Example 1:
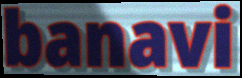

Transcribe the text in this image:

banavi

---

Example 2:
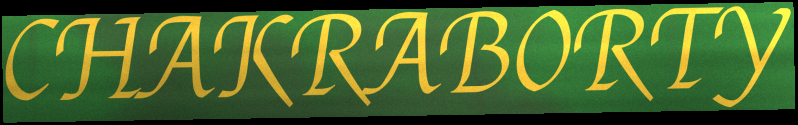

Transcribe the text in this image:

CHAKRABORTY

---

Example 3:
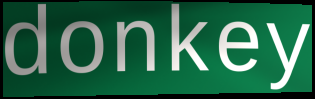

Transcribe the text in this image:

donkey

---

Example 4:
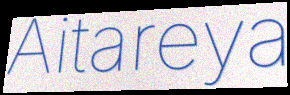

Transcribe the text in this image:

Aitareya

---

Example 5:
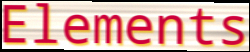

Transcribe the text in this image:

Elements